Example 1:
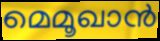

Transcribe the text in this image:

മെമൂഖാൻ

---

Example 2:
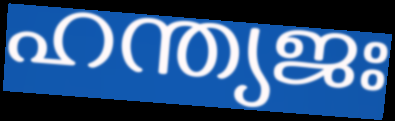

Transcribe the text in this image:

ഹന്ത്യജഃ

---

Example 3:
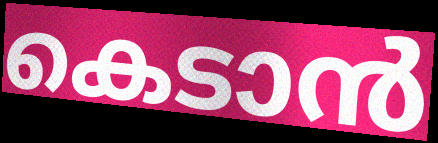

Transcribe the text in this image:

കെടാൻ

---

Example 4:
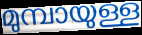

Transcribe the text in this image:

മുമ്പായുള്ള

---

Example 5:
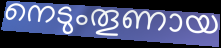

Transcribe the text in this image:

നെടുംതൂണായ